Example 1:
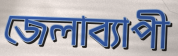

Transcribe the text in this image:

জেলাব্যাপী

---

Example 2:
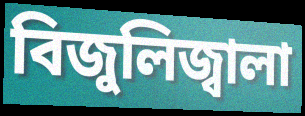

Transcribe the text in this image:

বিজুলিজ্বালা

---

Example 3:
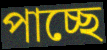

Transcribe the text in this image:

পাচ্ছে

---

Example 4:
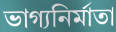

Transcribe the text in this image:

ভাগ্যনির্মাতা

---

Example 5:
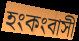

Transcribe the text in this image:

হংকংবাসী